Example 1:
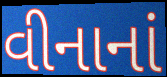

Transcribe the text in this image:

વીનાનાં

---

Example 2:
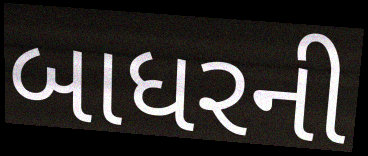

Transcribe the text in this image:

બાધરની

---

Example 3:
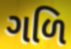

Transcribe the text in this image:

ગળિ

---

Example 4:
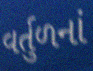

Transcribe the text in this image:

વર્તુળનાં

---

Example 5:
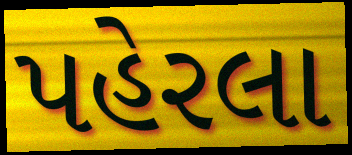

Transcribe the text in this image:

પહેરલા